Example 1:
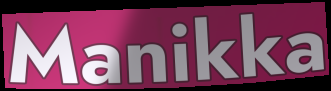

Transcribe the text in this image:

Manikka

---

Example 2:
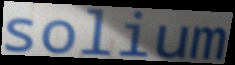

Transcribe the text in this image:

solium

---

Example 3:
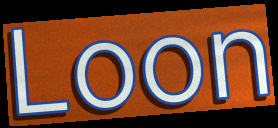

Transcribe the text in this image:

Loon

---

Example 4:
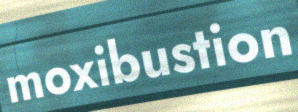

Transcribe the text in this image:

moxibustion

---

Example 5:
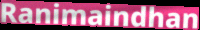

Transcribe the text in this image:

Ranimaindhan